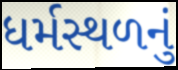
ધર્મસ્થળનું